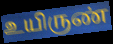
உயிருண்